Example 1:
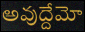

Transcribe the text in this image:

అవుద్దేమో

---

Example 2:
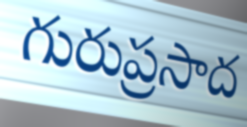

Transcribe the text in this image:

గురుప్రసాద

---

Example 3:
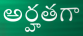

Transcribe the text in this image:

అర్హతగా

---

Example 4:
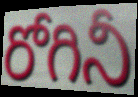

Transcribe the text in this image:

రోగినీ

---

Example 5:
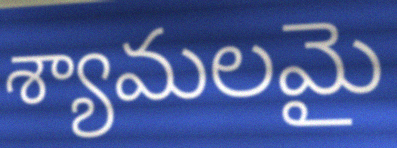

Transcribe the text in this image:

శ్యామలమై